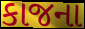
કાજના